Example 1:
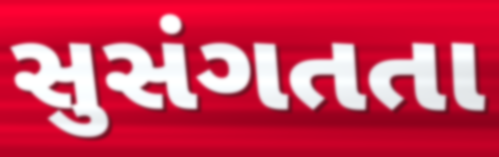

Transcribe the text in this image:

સુસંગતતા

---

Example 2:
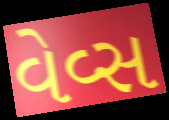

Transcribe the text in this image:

વેવ્સ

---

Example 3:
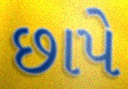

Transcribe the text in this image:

છાપે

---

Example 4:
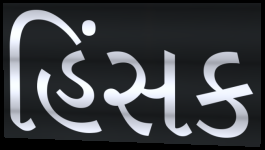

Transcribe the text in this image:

હિંસક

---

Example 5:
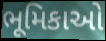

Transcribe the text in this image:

ભૂમિકાઓ